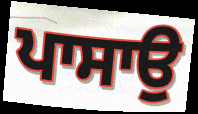
ਪਾਸਾਉ